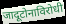
जादूटोनाविरोधी